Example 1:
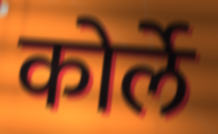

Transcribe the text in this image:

कोर्ले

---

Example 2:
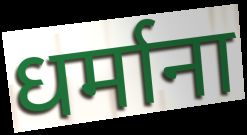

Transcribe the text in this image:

धर्माना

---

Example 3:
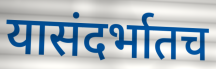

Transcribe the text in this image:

यासंदर्भातच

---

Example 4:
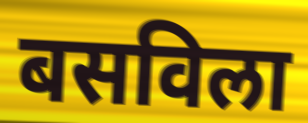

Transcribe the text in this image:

बसविला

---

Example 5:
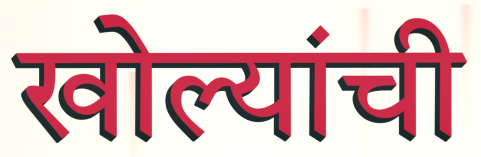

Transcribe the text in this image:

खोल्यांची